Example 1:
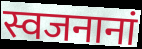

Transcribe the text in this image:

स्वजनानां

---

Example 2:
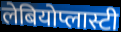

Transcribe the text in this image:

लेबियोप्लास्टी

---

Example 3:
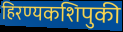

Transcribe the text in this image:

हिरण्यकशिपुकी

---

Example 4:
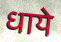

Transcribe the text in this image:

धाये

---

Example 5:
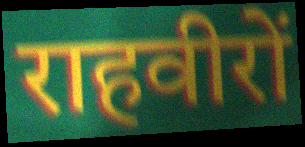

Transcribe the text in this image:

राहवीरों